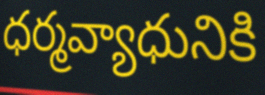
ధర్మవ్యాధునికి